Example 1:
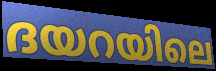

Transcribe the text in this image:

ദയറയിലെ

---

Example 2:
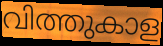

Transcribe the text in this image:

വിത്തുകാള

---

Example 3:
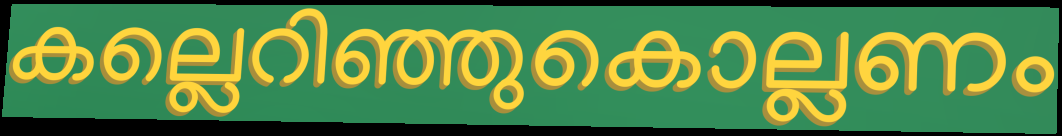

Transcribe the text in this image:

കല്ലെറിഞ്ഞുകൊല്ലണം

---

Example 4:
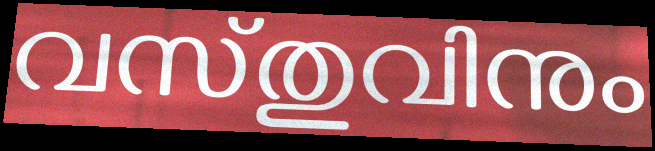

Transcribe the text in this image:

വസ്‌തുവിനും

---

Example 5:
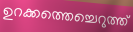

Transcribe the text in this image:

ഉറക്കത്തെച്ചെറുത്ത്